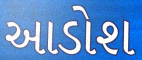
આડોશ